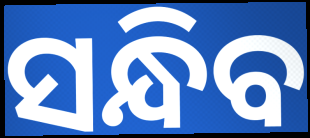
ସନ୍ଧିବ